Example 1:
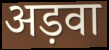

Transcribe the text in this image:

अड़वा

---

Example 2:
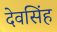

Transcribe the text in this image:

देवसिंह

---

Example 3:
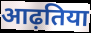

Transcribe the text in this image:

आढ़तिया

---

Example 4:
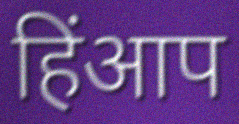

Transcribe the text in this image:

हिंआप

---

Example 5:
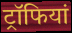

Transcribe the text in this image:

ट्रॉफियां